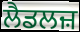
ਲੈਡਲਜ਼